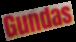
Gundas